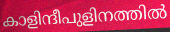
കാളിന്ദീപുളിനത്തിൽ